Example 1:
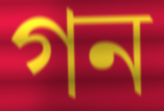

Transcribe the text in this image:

গন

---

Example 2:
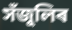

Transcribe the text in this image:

সঁজুলিৰ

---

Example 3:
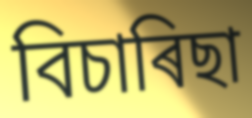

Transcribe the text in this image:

বিচাৰিছা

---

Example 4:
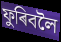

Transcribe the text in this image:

ফুৰিবলৈ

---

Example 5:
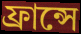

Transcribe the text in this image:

ফ্ৰান্সে